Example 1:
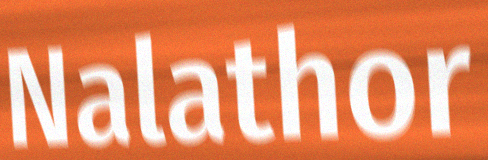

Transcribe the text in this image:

Nalathor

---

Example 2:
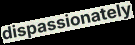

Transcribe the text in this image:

dispassionately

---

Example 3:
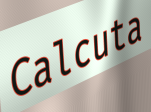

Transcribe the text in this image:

Calcuta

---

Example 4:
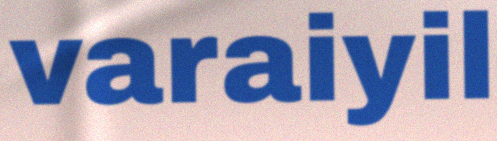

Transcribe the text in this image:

varaiyil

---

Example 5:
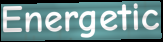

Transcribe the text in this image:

Energetic